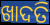
ଖାଦତି